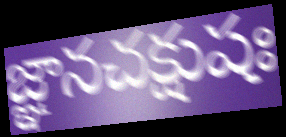
జ్ఞానచక్షుషః